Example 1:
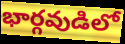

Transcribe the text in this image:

భార్గవుడిలో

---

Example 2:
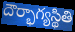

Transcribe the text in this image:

దౌర్భాగ్యస్థితి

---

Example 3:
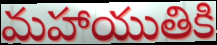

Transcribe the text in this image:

మహాయుతికి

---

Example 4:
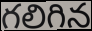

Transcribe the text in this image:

గలిగిన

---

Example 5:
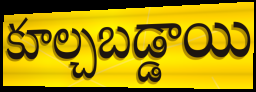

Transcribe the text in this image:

కూల్చబడ్డాయి